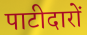
पाटीदारों